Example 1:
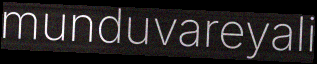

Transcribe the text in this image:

munduvareyali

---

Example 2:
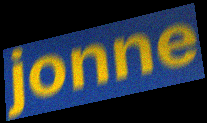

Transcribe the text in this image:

jonne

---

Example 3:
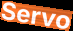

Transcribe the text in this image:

Servo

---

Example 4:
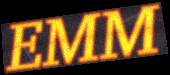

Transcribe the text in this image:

EMM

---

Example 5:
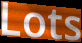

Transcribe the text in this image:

Lots